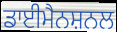
ਡਾਈਮੈਨਸ਼ਨਲ